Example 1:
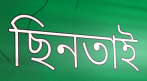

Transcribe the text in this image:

ছিনতাই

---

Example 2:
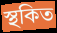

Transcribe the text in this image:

স্থকিত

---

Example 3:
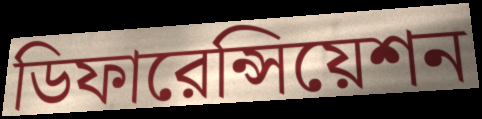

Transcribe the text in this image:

ডিফারেন্সিয়েশন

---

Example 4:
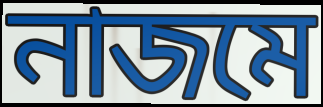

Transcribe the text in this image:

নাজমে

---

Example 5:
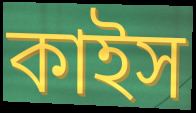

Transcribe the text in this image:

কাইস